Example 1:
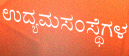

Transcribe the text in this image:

ಉದ್ಯಮಸಂಸ್ಥೆಗಳ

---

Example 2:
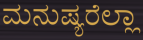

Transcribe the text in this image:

ಮನುಷ್ಯರೆಲ್ಲಾ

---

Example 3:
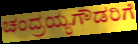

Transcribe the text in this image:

ಚಂದ್ರಯ್ಯಗೌಡರಿಗೆ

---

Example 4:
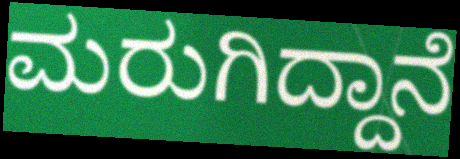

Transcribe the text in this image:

ಮರುಗಿದ್ದಾನೆ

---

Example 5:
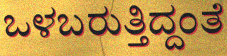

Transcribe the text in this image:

ಒಳಬರುತ್ತಿದ್ದಂತೆ